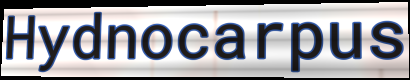
Hydnocarpus